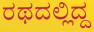
ರಥದಲ್ಲಿದ್ದ